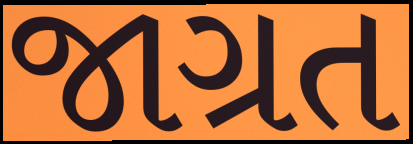
જાગ્રત